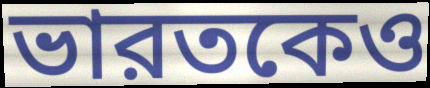
ভারতকেও